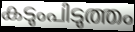
കടുംപിടുത്തം